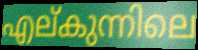
എല്കുന്നിലെ